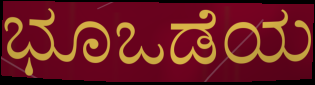
ಭೂಒಡೆಯ